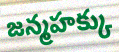
జన్మహక్కు